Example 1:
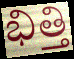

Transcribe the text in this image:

భిత్తి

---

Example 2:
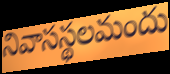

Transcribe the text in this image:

నివాసస్థలమందు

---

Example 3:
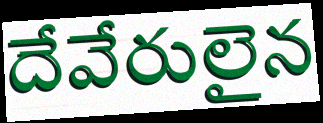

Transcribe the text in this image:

దేవేరులైన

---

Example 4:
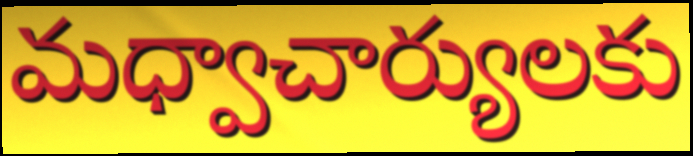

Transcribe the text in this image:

మధ్వాచార్యులకు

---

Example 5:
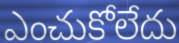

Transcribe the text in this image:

ఎంచుకోలేదు